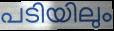
പടിയിലും